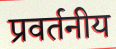
प्रवर्तनीय